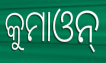
କୁମାଓନ୍